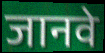
जानवे